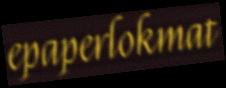
epaperlokmat